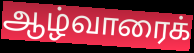
ஆழ்வாரைக்